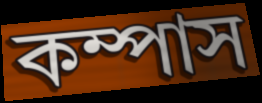
কম্পাস